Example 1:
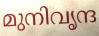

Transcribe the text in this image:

മുനിവൃന്ദ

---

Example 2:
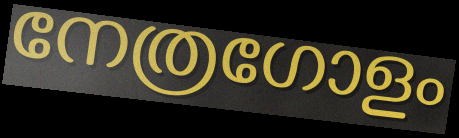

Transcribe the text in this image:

നേത്രഗോളം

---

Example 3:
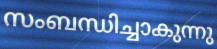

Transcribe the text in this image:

സംബന്ധിച്ചാകുന്നു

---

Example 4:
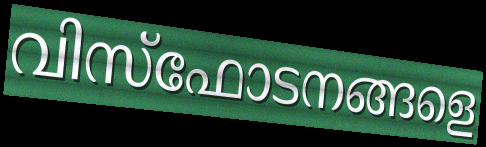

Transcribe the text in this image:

വിസ്ഫോടനങ്ങളെ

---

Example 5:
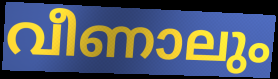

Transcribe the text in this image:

വീണാലും